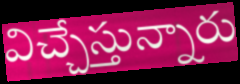
విచ్చేస్తున్నారు